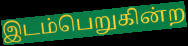
இடம்பெறுகின்ற